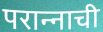
परान्नाची